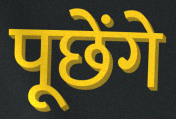
पूछेंगे